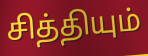
சித்தியும்